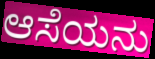
ಆಸೆಯನು